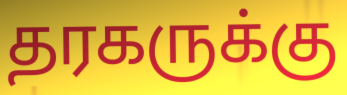
தரகருக்கு